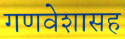
गणवेशासह